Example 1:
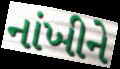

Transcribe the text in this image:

નાંખીને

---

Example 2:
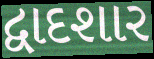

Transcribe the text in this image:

દ્વાદશાર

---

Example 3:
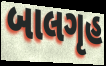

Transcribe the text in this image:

બાલગૃહ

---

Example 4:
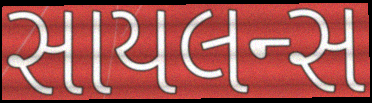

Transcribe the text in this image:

સાયલન્સ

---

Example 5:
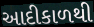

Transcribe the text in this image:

આદીકાળથી